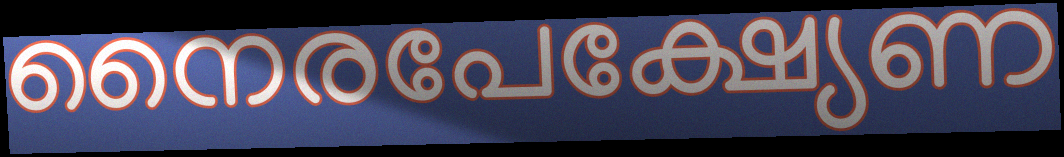
നൈരപേക്ഷ്യേണ